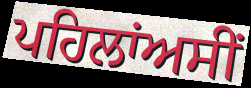
ਪਹਿਲਾਂਅਸੀਂ